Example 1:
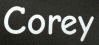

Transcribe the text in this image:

Corey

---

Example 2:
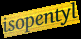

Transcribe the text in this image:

isopentyl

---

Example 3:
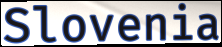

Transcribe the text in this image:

Slovenia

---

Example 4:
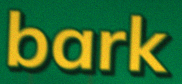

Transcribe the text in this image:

bark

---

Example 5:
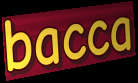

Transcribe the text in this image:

bacca